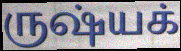
ருஷ்யக்